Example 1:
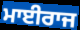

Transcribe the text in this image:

ਮਾਈਰਾਜ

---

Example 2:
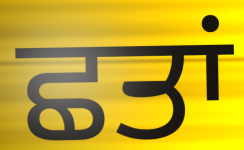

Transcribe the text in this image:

ਛਤਾਂ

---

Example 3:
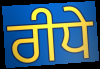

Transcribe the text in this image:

ਰੀਧੇ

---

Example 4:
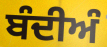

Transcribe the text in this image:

ਬੰਦੀਅੰ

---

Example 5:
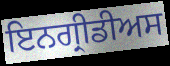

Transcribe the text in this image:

ਇਨਗ੍ਰੀਡੀਅਸ